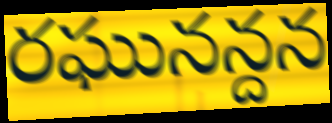
రఘునన్దన